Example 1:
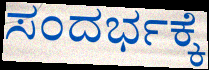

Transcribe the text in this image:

ಸಂದರ್ಭಕ್ಕೆ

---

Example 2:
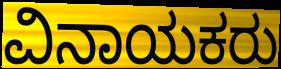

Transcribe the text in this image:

ವಿನಾಯಕರು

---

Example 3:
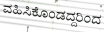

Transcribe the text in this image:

ವಹಿಸಿಕೊಂಡದ್ದರಿಂದ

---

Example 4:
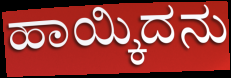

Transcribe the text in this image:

ಹಾಯ್ಕಿದನು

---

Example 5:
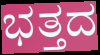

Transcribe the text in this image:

ಭತ್ತದ